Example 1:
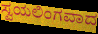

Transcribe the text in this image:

ಸ್ವಯಲಿಂಗವಾದ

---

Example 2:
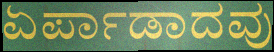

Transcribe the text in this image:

ಏರ್ಪಾಡಾದವು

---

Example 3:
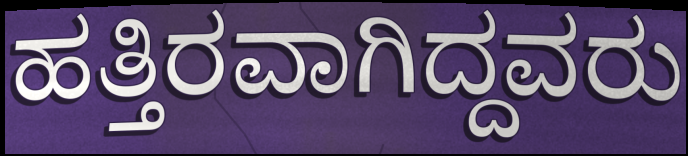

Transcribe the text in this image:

ಹತ್ತಿರವಾಗಿದ್ದವರು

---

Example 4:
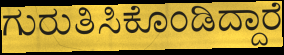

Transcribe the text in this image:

ಗುರುತಿಸಿಕೊಂಡಿದ್ದಾರೆ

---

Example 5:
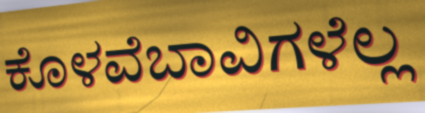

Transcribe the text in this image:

ಕೊಳವೆಬಾವಿಗಳೆಲ್ಲ